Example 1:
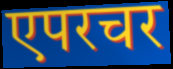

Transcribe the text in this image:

एपरचर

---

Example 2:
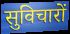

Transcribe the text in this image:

सुविचारों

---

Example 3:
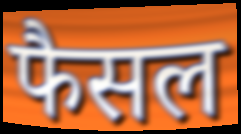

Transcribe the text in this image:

फैसल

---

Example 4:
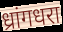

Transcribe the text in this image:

ध्रांगधरा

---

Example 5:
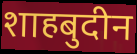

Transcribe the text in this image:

शाहबुदीन